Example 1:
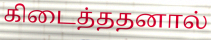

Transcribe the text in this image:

கிடைத்ததனால்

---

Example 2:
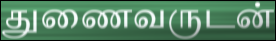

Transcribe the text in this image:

துணைவருடன்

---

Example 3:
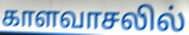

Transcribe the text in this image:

காளவாசலில்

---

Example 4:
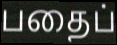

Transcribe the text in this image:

பதைப்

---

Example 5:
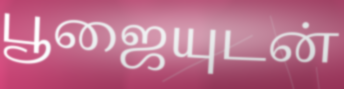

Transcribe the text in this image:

பூஜையுடன்